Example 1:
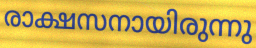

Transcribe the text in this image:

രാക്ഷസനായിരുന്നു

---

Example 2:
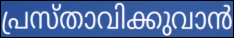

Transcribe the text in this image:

പ്രസ്താവിക്കുവാൻ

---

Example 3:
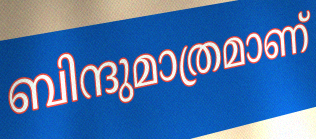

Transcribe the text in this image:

ബിന്ദുമാത്രമാണ്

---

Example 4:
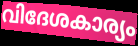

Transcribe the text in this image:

വിദേശകാര്യം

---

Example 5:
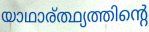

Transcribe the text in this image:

യാഥാര്ത്ഥ്യത്തിന്റെ